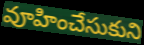
వూహించేసుకుని